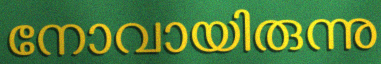
നോവായിരുന്നു